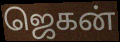
ஜெகன்